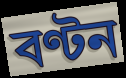
বণ্টন